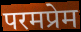
परमप्रेम